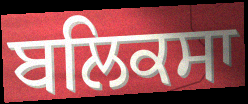
ਬਲਿਕਸਾ